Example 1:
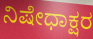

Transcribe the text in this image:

ನಿಷೇಧಾಕ್ಷರ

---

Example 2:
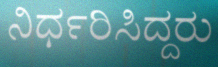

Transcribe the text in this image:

ನಿರ್ಧರಿಸಿದ್ದರು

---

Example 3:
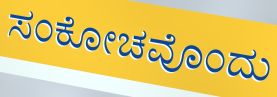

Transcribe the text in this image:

ಸಂಕೋಚವೊಂದು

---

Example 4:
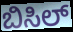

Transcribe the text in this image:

ಬಿಸಿಲ್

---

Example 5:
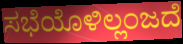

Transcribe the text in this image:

ಸಭೆಯೊಳಿಲ್ಲಂಜದೆ